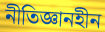
নীতিজ্ঞানহীন